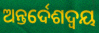
ଅନ୍ତର୍ଦେଶଦ୍ଵୟ